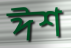
ঈশ